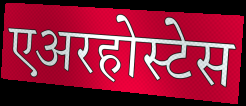
एअरहोस्टेस